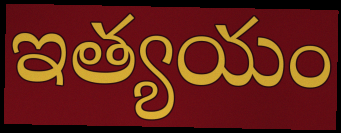
ఇత్యయం